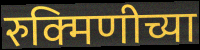
रुक्मिणीच्या